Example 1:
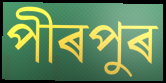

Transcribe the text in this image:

পীৰপুৰ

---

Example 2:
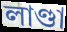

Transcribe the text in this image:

লাণ্ডা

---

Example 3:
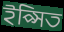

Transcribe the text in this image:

ইপ্সিত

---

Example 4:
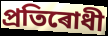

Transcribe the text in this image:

প্ৰতিৰোধী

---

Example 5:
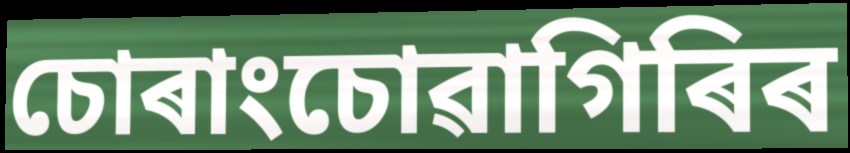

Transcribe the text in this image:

চোৰাংচোৱাগিৰিৰ